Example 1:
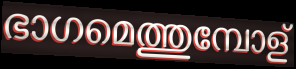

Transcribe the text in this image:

ഭാഗമെത്തുമ്പോള്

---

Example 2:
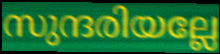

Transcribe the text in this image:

സുന്ദരിയല്ലേ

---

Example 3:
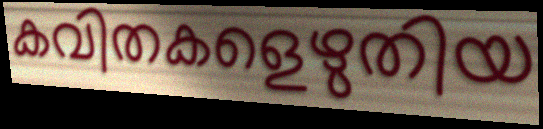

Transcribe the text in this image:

കവിതകളെഴുതിയ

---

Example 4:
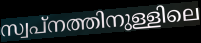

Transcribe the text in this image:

സ്വപ്നത്തിനുള്ളിലെ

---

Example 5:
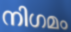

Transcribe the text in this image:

നിഗമം